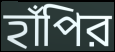
হাঁপির